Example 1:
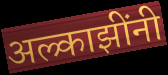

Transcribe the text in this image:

अल्काझींनी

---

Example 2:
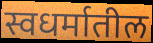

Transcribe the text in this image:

स्वधर्मातील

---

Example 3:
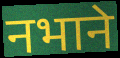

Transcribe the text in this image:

नभाने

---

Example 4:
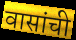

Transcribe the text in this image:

वासांची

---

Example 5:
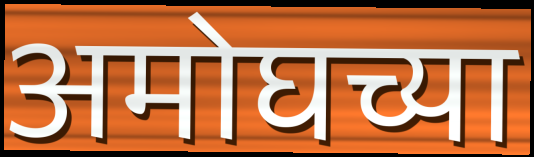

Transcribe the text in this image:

अमोघच्या